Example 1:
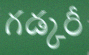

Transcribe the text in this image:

గడ్కరీ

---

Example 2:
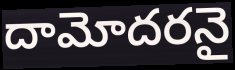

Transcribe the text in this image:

దామోదరనై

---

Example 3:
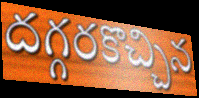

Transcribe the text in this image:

దగ్గరకొచ్చిన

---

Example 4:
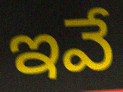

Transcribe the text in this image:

ఇవే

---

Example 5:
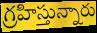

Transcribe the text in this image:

గ్రహిస్తున్నారు